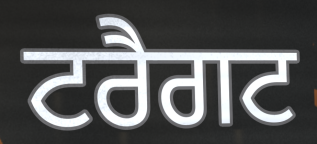
ਟਰੈਗਟ